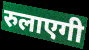
रुलाएगी